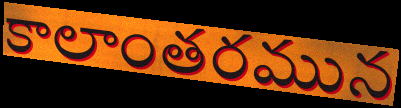
కాలాంతరమున